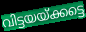
വിട്ടയയ്ക്കട്ടെ